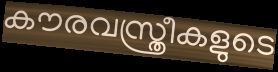
കൗരവസ്ത്രീകളുടെ